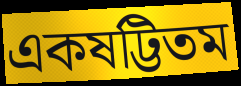
একষট্টিতম